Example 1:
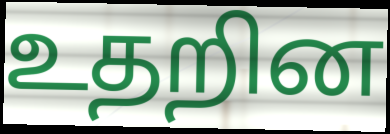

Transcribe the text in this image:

உதறின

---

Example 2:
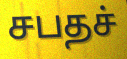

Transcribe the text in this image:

சபதச்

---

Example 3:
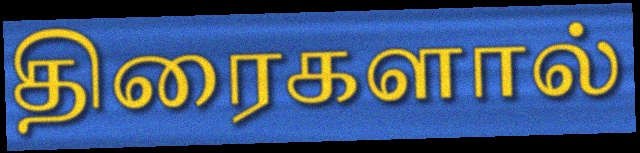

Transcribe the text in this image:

திரைகளால்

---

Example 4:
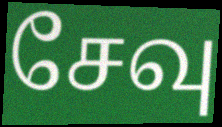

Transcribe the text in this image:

சேவு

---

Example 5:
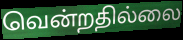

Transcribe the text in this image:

வென்றதில்லை